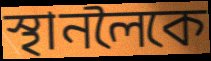
স্থানলৈকে